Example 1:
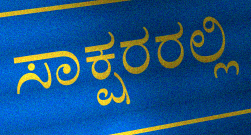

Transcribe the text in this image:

ಸಾಕ್ಷರರಲ್ಲಿ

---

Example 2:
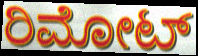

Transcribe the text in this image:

ರಿಮೋಟ್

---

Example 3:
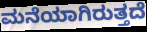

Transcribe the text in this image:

ಮನೆಯಾಗಿರುತ್ತದೆ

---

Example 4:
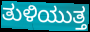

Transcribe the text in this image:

ತುಳಿಯುತ್ತ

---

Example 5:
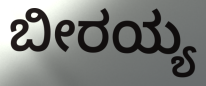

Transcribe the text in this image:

ಬೀರಯ್ಯ